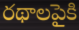
రథాలపైకి